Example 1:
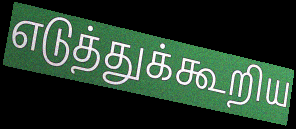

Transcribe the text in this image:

எடுத்துக்கூறிய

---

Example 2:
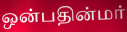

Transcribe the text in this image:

ஒன்பதின்மர்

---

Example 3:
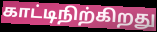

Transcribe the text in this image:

காட்டிநிற்கிறது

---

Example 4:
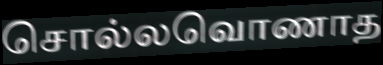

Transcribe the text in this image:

சொல்லவொணாத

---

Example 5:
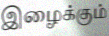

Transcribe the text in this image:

இழைக்கும்